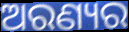
ଅରଣ୍ୟର